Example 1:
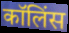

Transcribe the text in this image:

कॉलिंस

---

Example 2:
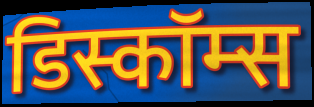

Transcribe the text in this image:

डिस्कॉम्स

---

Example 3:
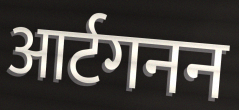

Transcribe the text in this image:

आर्टगनन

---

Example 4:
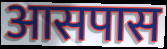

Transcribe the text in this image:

आसपास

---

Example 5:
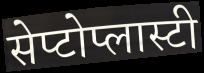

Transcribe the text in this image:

सेप्टोप्लास्टी